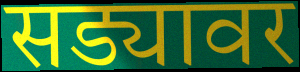
सड्यावर